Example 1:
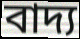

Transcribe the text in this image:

বাদ্য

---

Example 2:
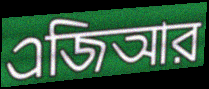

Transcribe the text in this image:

এজিআর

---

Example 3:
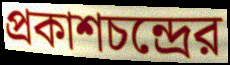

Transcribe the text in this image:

প্রকাশচন্দ্রের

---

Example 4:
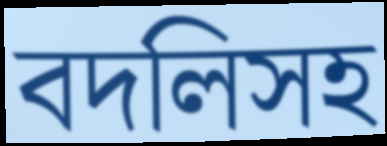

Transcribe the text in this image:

বদলিসহ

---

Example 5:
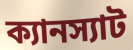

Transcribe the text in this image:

ক্যানস্যাট